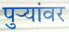
पुऱ्यांवर